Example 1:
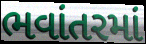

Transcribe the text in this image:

ભવાંતરમાં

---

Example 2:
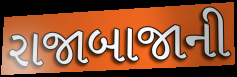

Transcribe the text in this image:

રાજાબાજાની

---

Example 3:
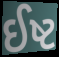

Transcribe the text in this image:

ઈષ્ટ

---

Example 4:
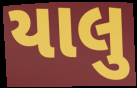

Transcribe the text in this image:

યાલુ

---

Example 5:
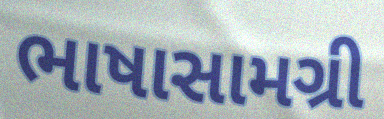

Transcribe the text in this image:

ભાષાસામગ્રી